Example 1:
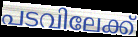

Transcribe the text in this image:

പടവിലേക്ക്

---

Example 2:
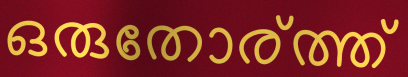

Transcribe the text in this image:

ഒരുതോര്ത്ത്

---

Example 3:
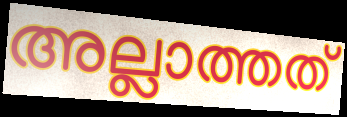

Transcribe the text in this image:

അല്ലാത്തത്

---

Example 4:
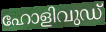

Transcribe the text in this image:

ഹോളിവുഡ്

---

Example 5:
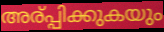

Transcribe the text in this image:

അര്പ്പിക്കുകയും